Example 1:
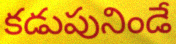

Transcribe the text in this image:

కడుపునిండే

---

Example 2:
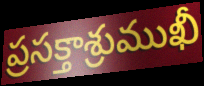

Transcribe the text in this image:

ప్రసక్తాశ్రుముఖీ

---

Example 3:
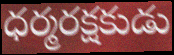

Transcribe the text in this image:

ధర్మరక్షకుడు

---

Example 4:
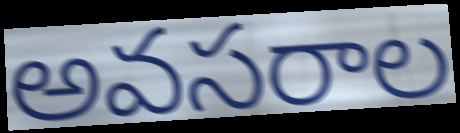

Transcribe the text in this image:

అవసరాల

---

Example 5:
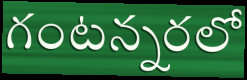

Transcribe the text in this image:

గంటన్నరలో